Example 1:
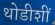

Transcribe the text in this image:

थोडीशीं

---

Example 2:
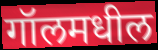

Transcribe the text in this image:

गॉलमधील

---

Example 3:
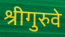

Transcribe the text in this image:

श्रीगुरुवे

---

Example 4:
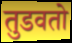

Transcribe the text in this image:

तुडवतो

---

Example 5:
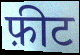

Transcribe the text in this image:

फ़ीट